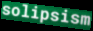
solipsism